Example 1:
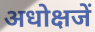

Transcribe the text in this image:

अधोक्षजें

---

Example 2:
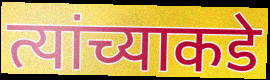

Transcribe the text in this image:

त्यांच्याकडे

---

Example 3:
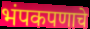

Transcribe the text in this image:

भंपकपणाचे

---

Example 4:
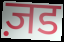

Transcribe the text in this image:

ज़ड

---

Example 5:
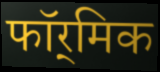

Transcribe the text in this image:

फॉर्मिक